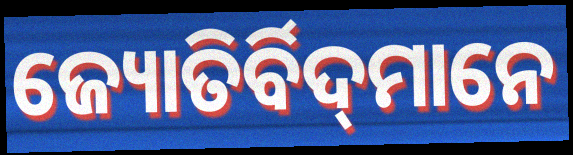
ଜ୍ୟୋତିର୍ବିଦ୍‌ମାନେ